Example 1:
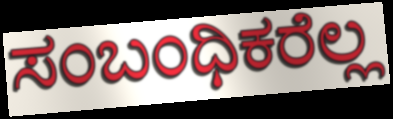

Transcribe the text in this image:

ಸಂಬಂಧಿಕರೆಲ್ಲ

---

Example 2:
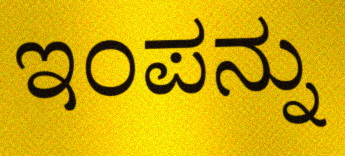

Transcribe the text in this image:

ಇಂಪನ್ನು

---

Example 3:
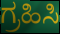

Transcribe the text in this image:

ಗ್ರಹಿಸಿ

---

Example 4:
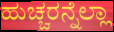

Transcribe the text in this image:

ಹುಚ್ಚರನ್ನೆಲ್ಲಾ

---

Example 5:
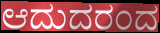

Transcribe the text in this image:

ಆದುದರಂದ